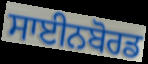
ਸਾਈਨਬੋਰਡ